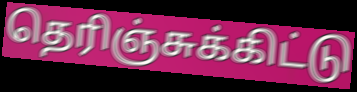
தெரிஞ்சுக்கிட்டு